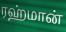
ரஹ்மான்